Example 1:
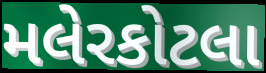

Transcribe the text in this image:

મલેરકોટલા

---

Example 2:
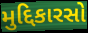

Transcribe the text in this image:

મુદ્દિકારસો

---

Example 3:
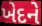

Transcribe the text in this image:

ખેદને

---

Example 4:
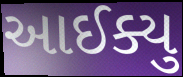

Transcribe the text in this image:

આઈક્યુ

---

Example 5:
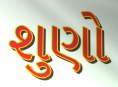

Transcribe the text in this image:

શુણો